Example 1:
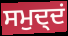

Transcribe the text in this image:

ਸਮੁਦ੍ਦਂ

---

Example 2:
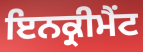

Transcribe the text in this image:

ਇਨਕ੍ਰੀਮੈਂਟ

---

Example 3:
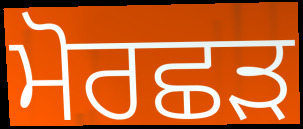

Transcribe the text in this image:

ਮੋਰਛੜ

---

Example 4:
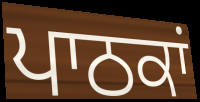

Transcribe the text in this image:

ਪਾਠਕਾਂ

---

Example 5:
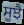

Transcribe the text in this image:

ਸੂਝੈ